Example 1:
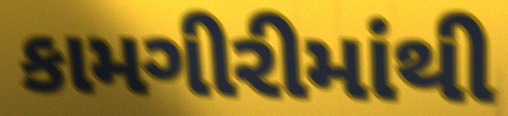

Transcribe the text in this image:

કામગીરીમાંથી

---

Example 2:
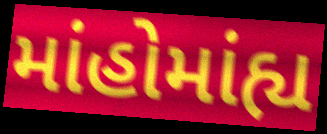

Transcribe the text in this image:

માંહોમાંહ્ય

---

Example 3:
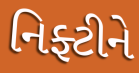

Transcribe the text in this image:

નિફ્ટીને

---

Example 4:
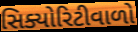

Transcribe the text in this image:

સિક્યોરિટીવાળો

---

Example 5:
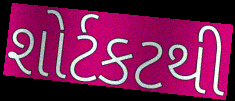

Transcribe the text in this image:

શોર્ટકટથી